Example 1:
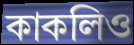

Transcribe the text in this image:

কাকলিও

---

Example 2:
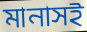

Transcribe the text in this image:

মানাসই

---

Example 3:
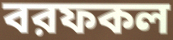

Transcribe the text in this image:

বরফকল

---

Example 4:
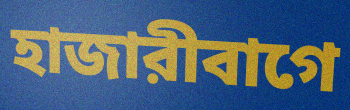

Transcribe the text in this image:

হাজারীবাগে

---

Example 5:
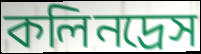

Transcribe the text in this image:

কলিনদ্রেস